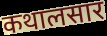
कथालसार